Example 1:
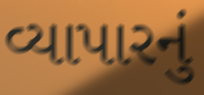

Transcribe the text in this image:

વ્યાપારનું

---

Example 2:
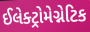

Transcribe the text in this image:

ઈલેક્ટ્રોમેગ્નેટિક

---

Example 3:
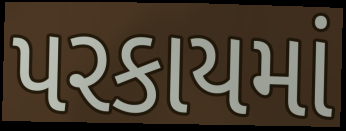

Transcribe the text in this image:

પરકાયમાં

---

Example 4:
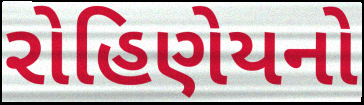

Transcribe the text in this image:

રોહિણેયનો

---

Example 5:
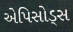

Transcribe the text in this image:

એપિસોડ્સ